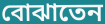
বোঝাতেন